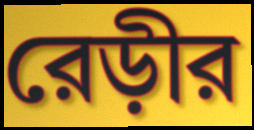
রেড়ীর